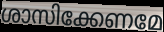
ശാസിക്കേണമേ